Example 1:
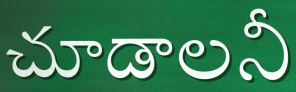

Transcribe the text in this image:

చూడాలనీ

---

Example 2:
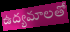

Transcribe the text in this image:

ఉద్యమాలతో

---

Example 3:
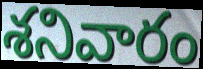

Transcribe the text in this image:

శనివారం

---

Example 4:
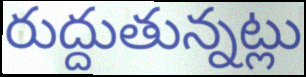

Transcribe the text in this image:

రుద్దుతున్నట్లు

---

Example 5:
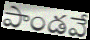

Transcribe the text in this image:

పాండవే